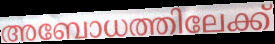
അബോധത്തിലേക്ക്